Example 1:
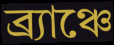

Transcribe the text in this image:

ব্র্যাঞ্চে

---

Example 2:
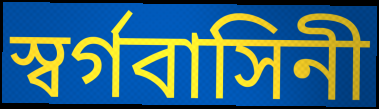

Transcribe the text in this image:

স্বর্গবাসিনী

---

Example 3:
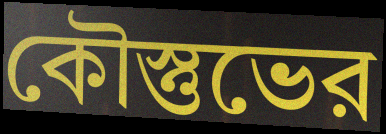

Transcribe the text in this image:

কৌস্তুভের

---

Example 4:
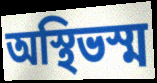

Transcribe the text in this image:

অস্থিভস্ম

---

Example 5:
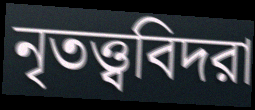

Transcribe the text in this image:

নৃতত্ত্ববিদরা